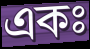
একঃ